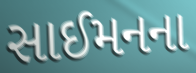
સાઈમનના